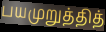
பயமுறுத்தித்